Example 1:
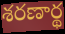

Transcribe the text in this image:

శరణార్థ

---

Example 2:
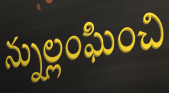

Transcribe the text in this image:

న్నుల్లంఘించి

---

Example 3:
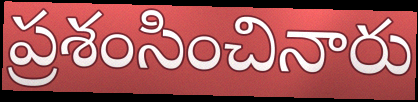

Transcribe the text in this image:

ప్రశంసించినారు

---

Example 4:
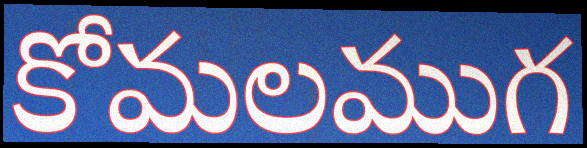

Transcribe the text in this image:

కోమలముగ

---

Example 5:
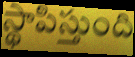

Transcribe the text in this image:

స్థాపిస్తుంది